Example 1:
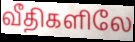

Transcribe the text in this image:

வீதிகளிலே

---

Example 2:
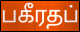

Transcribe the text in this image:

பகீரதப்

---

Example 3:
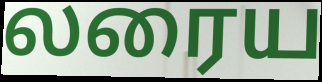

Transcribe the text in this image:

லரைய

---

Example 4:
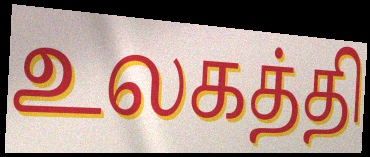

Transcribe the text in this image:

உலகத்தி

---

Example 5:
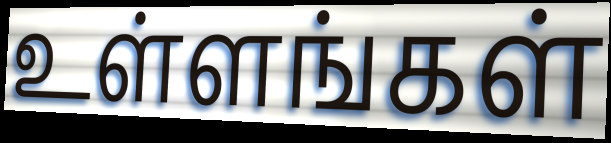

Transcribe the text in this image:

உள்ளங்கள்